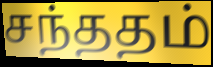
சந்ததம்